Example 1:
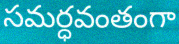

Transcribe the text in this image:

సమర్ధవంతంగా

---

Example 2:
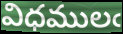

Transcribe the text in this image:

విధములఁ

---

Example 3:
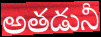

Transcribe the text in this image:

అతడునీ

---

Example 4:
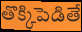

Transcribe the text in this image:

తొక్కిపెడితే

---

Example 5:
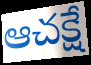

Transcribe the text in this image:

ఆచక్షే